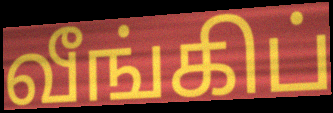
வீங்கிப்